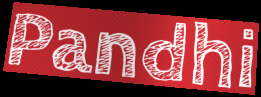
Pandhi